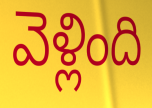
వెళ్లింది